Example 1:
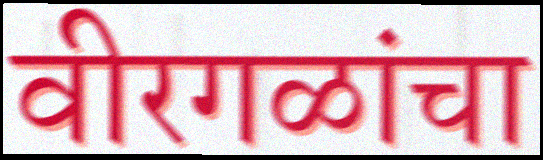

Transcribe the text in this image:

वीरगळांचा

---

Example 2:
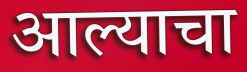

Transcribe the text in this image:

आल्‍याचा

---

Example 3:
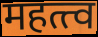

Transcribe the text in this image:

महत्‍त्‍व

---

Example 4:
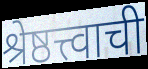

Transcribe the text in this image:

श्रेष्ठत्त्वाची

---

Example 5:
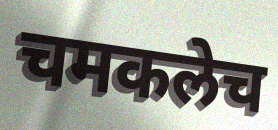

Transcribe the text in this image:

चमकलेच